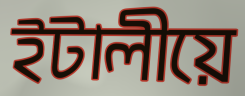
ইটালীয়ে